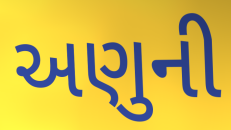
અણુની